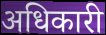
अधिकारी